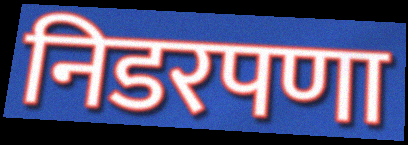
निडरपणा